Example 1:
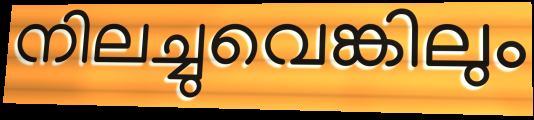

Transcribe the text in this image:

നിലച്ചുവെങ്കിലും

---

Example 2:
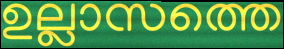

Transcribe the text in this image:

ഉല്ലാസത്തെ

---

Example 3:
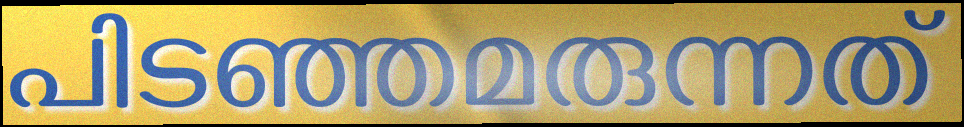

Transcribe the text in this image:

പിടഞ്ഞമരുന്നത്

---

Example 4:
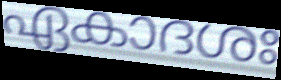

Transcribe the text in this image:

ഏകാദശഃ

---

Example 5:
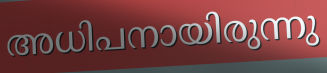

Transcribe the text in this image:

അധിപനായിരുന്നു